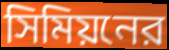
সিমিয়নের